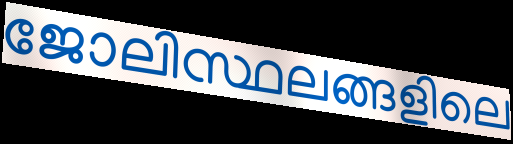
ജോലിസ്ഥലങ്ങളിലെ